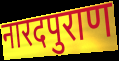
नारदपुराण